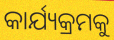
କାର୍ଯ୍ୟକ୍ରମକୁ